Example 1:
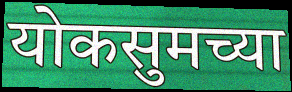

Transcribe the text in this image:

योकसुमच्या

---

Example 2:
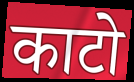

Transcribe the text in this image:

काटो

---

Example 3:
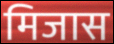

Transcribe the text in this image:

मिजास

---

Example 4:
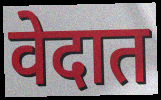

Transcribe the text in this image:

वेदात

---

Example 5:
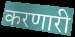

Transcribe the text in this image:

करणारी